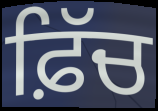
ਫ਼ਿੱਚ